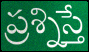
ప్రశ్నిస్తే